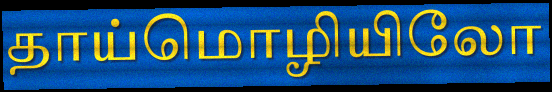
தாய்மொழியிலோ